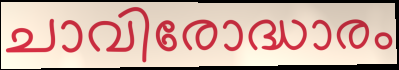
ചാവിരോദ്ധാരം